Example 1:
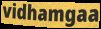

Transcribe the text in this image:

vidhamgaa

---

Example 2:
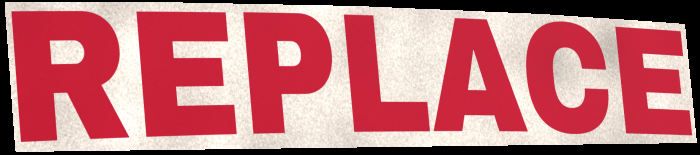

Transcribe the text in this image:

REPLACE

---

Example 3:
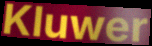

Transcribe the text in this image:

Kluwer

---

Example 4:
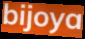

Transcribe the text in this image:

bijoya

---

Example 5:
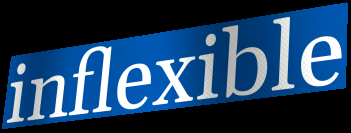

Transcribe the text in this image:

inflexible